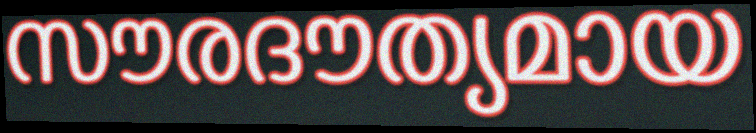
സൗരദൗത്യമായ